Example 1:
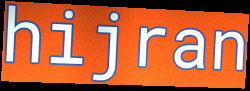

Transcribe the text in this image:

hijran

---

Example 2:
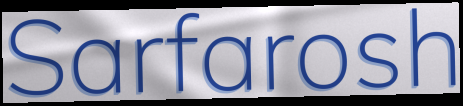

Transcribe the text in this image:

Sarfarosh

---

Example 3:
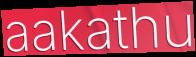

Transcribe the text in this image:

aakathu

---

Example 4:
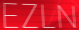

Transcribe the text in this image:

EZLN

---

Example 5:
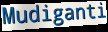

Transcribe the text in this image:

Mudiganti